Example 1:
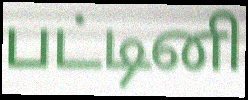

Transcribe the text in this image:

பட்டினி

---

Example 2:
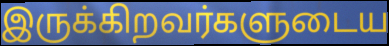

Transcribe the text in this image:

இருக்கிறவர்களுடைய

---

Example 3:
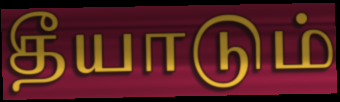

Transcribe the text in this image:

தீயாடும்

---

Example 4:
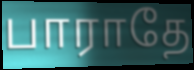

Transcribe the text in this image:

பாராதே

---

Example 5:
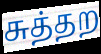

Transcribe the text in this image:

சுத்தற